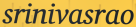
srinivasrao